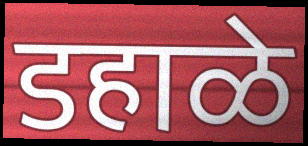
डहाळे